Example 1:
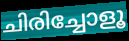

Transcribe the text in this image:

ചിരിച്ചോളൂ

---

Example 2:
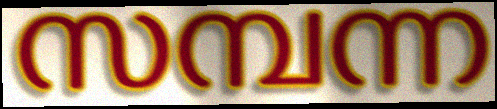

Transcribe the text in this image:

സമ്പന്ന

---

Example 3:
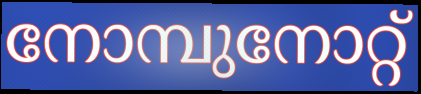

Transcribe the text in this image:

നോമ്പുനോറ്റ്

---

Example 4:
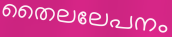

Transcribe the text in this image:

തൈലലേപനം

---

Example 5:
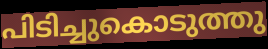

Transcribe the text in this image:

പിടിച്ചുകൊടുത്തു